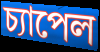
চ্যাপেল